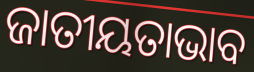
ଜାତୀୟତାଭାବ